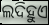
ଲଦିହୁଏ